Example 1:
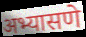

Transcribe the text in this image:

अभ्यासणे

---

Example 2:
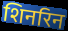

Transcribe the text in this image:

शिनरिन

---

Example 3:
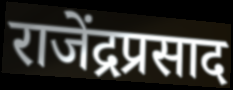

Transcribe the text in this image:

राजेंद्रप्रसाद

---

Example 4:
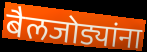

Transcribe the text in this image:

बैलजोड्यांना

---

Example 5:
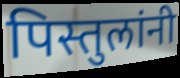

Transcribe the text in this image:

पिस्तुलांनी